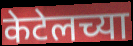
केटेलच्या